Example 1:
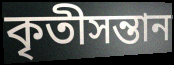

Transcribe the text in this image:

কৃতীসন্তান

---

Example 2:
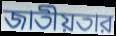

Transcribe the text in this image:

জাতীয়তার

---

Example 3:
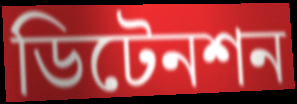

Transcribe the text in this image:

ডিটেনশন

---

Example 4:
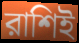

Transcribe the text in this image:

রাশিই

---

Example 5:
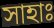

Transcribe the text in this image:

সাহাঃ